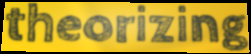
theorizing